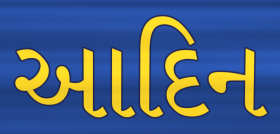
આદિન